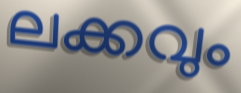
ലക്കവും